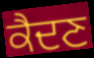
ਕੈਦਣ